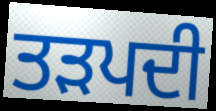
ਤੜਪਦੀ